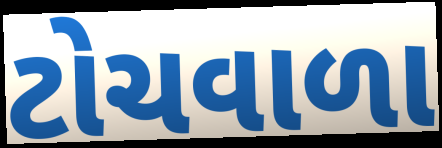
ટોચવાળા